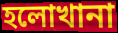
হলোখানা